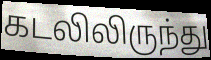
கடலிலிருந்து